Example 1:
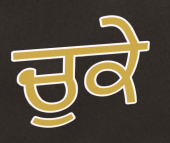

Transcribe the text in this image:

ਚੁਕੇ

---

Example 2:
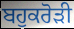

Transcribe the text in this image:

ਬਹੁਕਰੋੜੀ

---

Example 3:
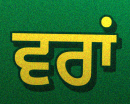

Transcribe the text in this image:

ਵਰਾਂ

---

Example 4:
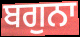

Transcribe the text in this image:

ਬਗੁਨਾ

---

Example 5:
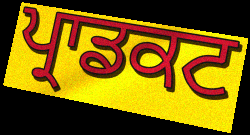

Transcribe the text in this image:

ਪ੍ਰਾਡਕਟ